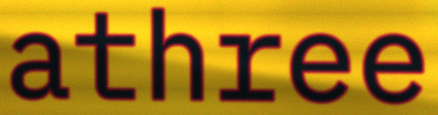
athree